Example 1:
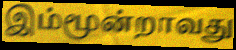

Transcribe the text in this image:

இம்மூன்றாவது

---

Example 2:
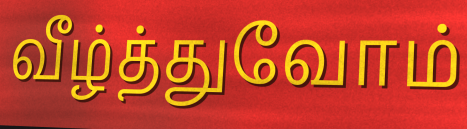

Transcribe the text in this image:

வீழ்த்துவோம்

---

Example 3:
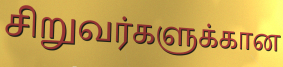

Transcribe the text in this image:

சிறுவர்களுக்கான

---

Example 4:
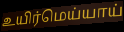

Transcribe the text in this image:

உயிர்மெய்யாய்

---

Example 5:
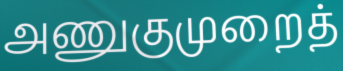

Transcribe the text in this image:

அணுகுமுறைத்